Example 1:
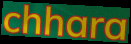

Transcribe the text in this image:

chhara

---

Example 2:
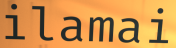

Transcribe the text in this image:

ilamai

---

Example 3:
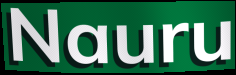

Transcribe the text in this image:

Nauru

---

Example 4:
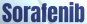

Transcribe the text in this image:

Sorafenib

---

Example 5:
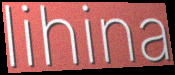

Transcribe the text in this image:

lihina